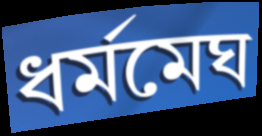
ধর্মমেঘ